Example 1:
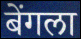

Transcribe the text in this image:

बेंगला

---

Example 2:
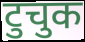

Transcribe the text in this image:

टुचुक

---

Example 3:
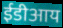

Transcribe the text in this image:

ईडीआय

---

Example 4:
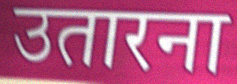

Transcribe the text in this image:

उतारना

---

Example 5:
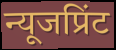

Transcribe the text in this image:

न्यूजप्रिंट